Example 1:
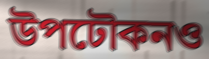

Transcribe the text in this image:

উপঢৌকনও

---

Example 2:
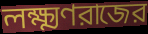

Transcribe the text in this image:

লক্ষ্মণরাজের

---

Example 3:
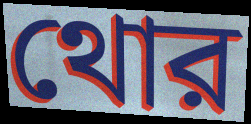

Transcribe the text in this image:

থোর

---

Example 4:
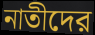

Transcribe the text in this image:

নাতীদের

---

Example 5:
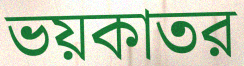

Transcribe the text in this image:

ভয়কাতর